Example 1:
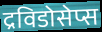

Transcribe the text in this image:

द्रविडोसेप्स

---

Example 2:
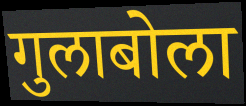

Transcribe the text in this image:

गुलाबोला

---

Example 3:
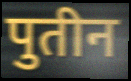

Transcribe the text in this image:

पुतीन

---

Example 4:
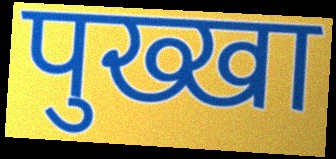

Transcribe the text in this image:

पुख्खा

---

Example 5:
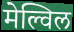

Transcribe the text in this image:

मेल्विल